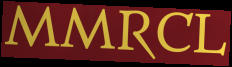
MMRCL